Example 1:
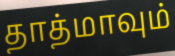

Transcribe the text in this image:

தாத்மாவும்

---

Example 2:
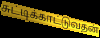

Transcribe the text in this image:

சுட்டிக்காட்டுவதன்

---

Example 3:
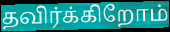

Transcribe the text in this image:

தவிர்க்கிறோம்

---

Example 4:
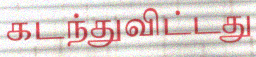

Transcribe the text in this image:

கடந்துவிட்டது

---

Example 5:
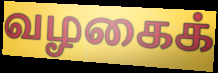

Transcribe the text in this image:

வழகைக்